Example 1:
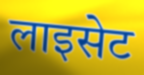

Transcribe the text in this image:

लाइसेट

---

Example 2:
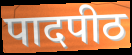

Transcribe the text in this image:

पादपीठ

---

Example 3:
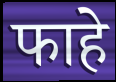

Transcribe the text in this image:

फाहे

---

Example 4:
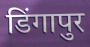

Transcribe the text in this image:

डिंगापुर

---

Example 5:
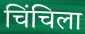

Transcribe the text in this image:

चिंचिला